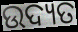
ଉଦ୍ୟତ